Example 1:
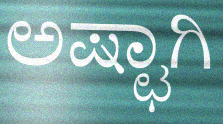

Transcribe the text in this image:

ಅಷ್ಟಾಗಿ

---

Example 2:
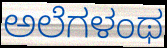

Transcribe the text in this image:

ಅಲೆಗಳಂಥ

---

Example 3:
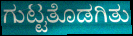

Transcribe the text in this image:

ಗುಟ್ಟತೊಡಗಿತು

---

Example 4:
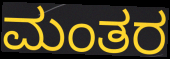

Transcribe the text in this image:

ಮಂತರ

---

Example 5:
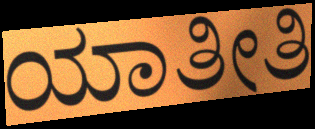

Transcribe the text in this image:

ಯಾತೀತಿ